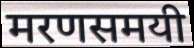
मरणसमयी